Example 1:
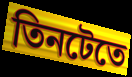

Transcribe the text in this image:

তিনটেতে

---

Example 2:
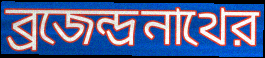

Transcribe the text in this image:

ব্রজেন্দ্রনাথের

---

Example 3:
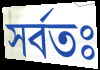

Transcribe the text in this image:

সর্বতঃ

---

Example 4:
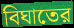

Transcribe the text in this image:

বিঘাতের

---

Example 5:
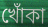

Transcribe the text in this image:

খোঁকা